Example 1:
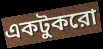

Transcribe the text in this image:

একটুকরো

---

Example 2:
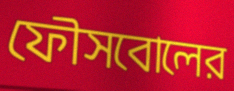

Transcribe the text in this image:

ফৌসবোলের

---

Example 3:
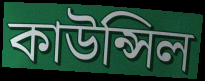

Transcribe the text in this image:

কাউন্সিল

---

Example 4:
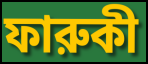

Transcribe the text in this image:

ফারুকী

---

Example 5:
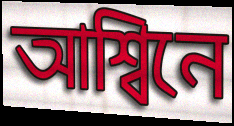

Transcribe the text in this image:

আশ্বিনে